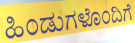
ಹಿಂಡುಗಳೊಂದಿಗೆ